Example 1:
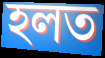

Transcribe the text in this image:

হলত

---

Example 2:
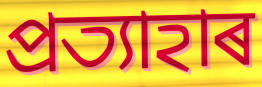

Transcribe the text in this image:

প্ৰত্যাহাৰ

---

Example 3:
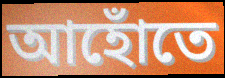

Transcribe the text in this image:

আহোঁতে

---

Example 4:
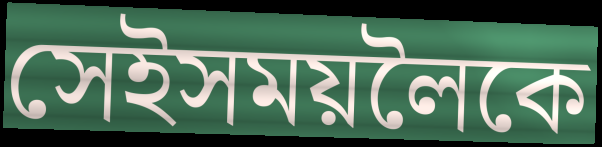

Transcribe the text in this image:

সেইসময়লৈকে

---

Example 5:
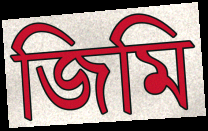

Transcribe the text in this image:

জিমি